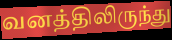
வனத்திலிருந்து